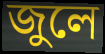
জুলে